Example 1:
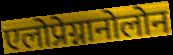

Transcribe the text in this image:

एलोप्रेग्नानोलोन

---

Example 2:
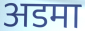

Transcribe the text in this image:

अडमा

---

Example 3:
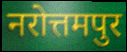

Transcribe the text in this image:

नरोत्तमपुर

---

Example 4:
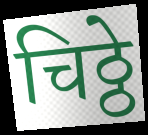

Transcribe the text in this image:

चिठ्ठे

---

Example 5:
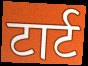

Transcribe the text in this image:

टार्ट